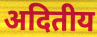
अदितीय